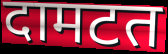
दामटत